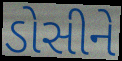
ડોસીને